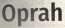
Oprah